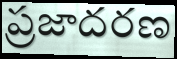
ప్రజాదరణ